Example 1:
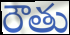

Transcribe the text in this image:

రౌతు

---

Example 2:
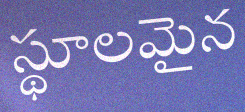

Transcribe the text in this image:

స్థూలమైన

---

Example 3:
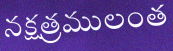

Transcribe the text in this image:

నక్షత్రములంత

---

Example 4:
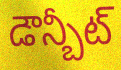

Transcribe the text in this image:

డౌన్బీట్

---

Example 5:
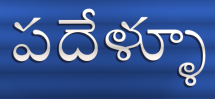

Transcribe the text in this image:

పదేళ్ళూ